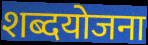
शब्दयोजना